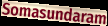
Somasundaram